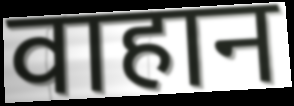
वाहान